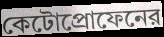
কেটোপ্রোফেনের